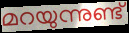
മറയുന്നുണ്ട്